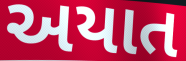
અયાત